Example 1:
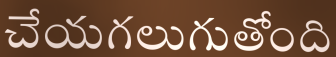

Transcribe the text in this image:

చేయగలుగుతోంది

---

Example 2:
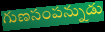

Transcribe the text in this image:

గుణసంపన్నుడు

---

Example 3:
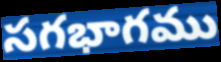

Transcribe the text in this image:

సగభాగము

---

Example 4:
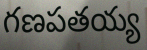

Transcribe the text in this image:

గణపతయ్య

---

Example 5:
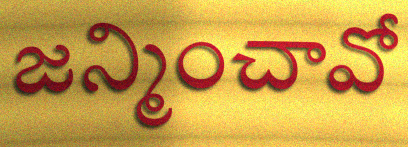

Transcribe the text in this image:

జన్మించావో